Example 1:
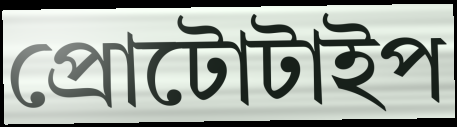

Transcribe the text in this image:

প্রোটোটাইপ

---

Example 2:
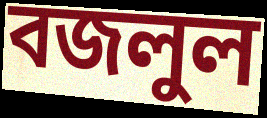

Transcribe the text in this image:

বজলুল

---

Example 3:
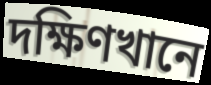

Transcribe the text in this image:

দক্ষিণখানে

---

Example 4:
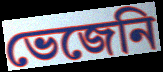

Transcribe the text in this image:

ভেজেনি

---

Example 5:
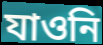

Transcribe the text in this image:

যাওনি